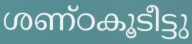
ശണ്ഠകൂടീട്ടു